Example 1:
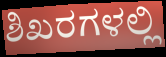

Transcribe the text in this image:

ಶಿಖರಗಳಲ್ಲಿ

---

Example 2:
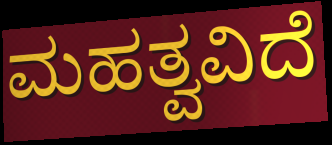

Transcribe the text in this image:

ಮಹತ್ವವಿದೆ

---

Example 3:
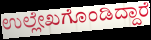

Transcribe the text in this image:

ಉಲ್ಲೇಖಗೊಂಡಿದ್ದಾರೆ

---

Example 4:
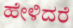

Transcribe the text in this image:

ಹೇಳಿದರೆ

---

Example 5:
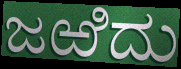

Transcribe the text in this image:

ಜಱಿದು